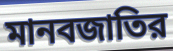
মানবজাতির